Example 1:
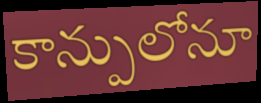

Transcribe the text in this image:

కాన్పులోనూ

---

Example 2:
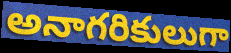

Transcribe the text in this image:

అనాగరికులుగా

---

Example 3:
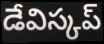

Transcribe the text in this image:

డేవిస్కప్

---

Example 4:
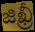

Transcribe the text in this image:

జిఖ్రీ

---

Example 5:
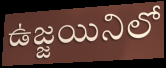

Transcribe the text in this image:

ఉజ్జయినిలో